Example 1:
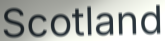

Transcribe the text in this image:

Scotland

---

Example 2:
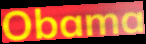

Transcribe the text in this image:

Obama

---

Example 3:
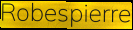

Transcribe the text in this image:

Robespierre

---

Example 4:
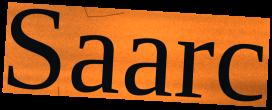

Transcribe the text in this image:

Saarc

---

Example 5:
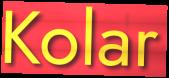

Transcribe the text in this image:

Kolar